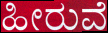
ಹೀರುವೆ